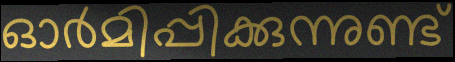
ഓർമിപ്പിക്കുന്നുണ്ട്